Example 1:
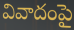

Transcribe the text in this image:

వివాదంపై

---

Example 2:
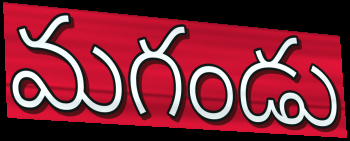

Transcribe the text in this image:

మగండు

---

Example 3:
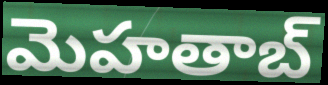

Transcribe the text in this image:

మెహతాబ్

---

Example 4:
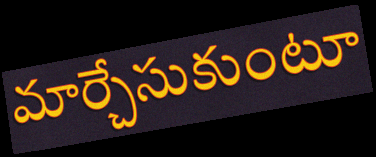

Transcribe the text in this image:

మార్చేసుకుంటూ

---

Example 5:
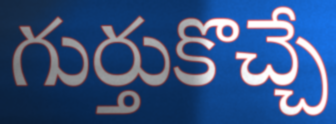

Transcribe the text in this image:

గుర్తుకొచ్చే